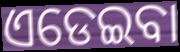
ଏଡେଇବା